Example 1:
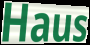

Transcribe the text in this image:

Haus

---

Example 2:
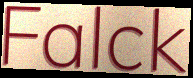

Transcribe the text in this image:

Falck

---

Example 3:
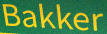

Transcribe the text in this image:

Bakker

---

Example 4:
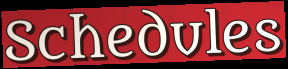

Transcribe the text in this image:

Schedules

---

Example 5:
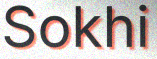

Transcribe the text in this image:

Sokhi